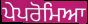
ਪੇਪਰੋਮਿਆ